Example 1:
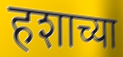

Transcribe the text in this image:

हशाच्या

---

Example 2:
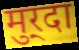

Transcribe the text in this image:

मुर्दा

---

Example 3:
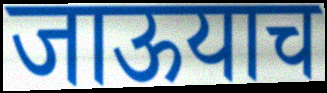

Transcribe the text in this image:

जाऊयाच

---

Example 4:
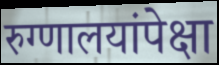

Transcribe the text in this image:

रुग्णालयांपेक्षा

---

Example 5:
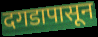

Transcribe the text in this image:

दगडापासून